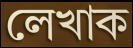
লেখাক